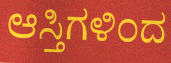
ಆಸ್ತಿಗಳಿಂದ